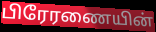
பிரேரணையின்